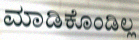
ಮಾಡಿಕೊಂಡಿಲ್ಲ